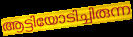
ആട്ടിയോടിച്ചിരുന്ന